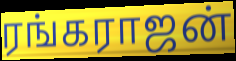
ரங்கராஜன்